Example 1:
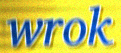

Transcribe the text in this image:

wrok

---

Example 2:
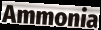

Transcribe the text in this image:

Ammonia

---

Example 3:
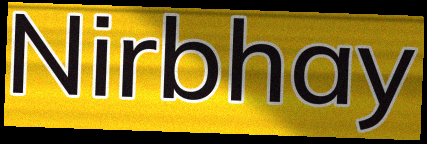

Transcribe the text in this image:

Nirbhay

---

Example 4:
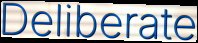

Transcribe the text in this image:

Deliberate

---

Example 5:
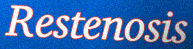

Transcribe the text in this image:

Restenosis